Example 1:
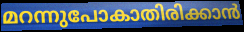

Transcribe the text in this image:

മറന്നുപോകാതിരിക്കാൻ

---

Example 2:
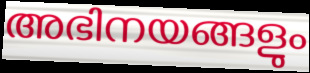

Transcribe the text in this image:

അഭിനയങ്ങളും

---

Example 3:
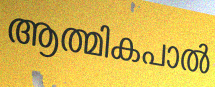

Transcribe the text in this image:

ആത്മികപാൽ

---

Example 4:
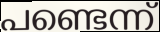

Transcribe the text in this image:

പണ്ടെന്ന്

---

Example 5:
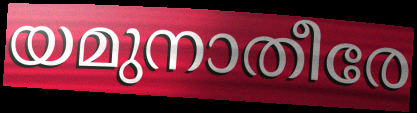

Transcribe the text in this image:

യമുനാതീരേ